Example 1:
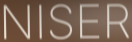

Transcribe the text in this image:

NISER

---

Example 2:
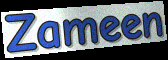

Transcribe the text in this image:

Zameen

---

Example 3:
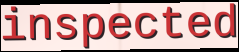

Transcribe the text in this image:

inspected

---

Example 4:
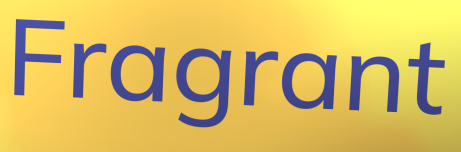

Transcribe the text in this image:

Fragrant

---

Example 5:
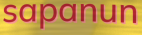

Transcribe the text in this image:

sapanun